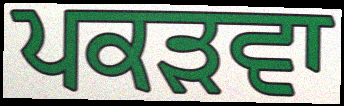
ਪਕੜਵਾ